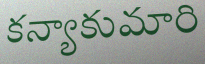
కన్యాకుమారి